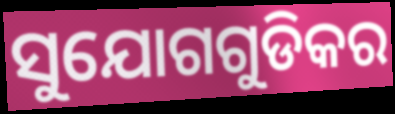
ସୁଯୋଗଗୁଡିକର